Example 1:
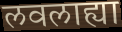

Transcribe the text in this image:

लवलाह्या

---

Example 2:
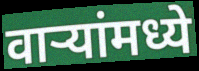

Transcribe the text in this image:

वाऱ्यांमध्ये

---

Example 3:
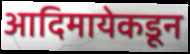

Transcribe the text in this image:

आदिमायेकडून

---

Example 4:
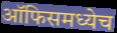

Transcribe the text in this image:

ऑफिसमध्येच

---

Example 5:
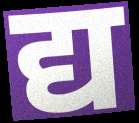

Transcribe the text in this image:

द्य